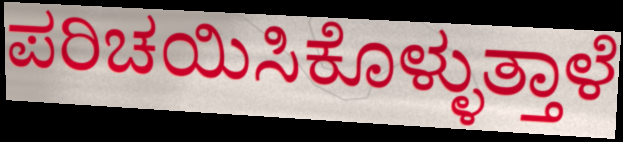
ಪರಿಚಯಿಸಿಕೊಳ್ಳುತ್ತಾಳೆ